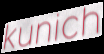
kunich